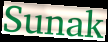
Sunak